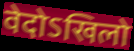
वेदोऽखिलो